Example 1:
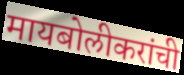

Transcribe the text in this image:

मायबोलीकरांची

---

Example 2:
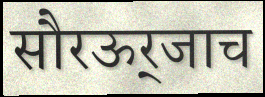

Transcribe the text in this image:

सौरऊर्जाच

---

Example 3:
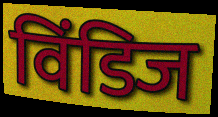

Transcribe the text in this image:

विंडिज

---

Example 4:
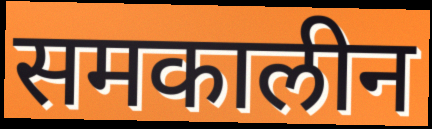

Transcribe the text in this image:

समकालीन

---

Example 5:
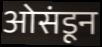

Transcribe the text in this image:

ओसंडून